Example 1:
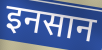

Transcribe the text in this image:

इनसान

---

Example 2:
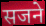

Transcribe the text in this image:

सजने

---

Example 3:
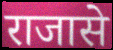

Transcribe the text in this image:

राजासे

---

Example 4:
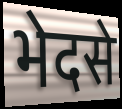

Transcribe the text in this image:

भेदसे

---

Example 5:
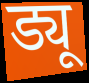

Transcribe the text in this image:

ड्यू